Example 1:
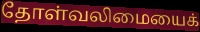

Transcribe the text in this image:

தோள்வலிமையைக்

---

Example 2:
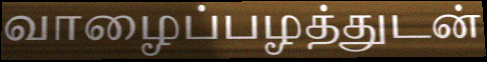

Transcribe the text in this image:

வாழைப்பழத்துடன்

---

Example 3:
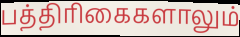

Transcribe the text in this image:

பத்திரிகைகளாலும்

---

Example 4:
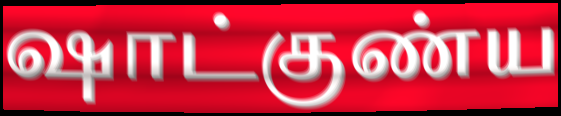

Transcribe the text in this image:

ஷாட்குண்ய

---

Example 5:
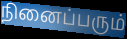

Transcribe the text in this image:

நினைப்பரும்